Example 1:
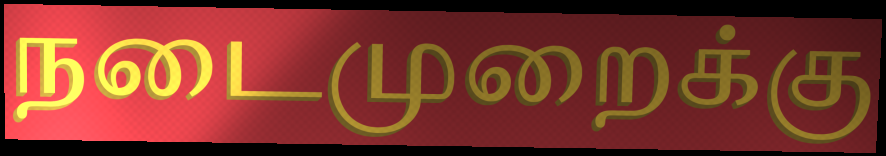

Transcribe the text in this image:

நடைமுறைக்கு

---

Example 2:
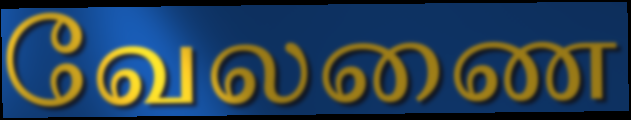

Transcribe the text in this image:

வேலணை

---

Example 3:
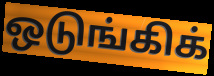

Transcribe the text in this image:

ஒடுங்கிக்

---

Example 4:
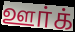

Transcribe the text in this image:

ஊர்க்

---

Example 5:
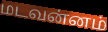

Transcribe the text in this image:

மடவன்னம்